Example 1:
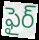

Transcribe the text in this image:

ఫైర్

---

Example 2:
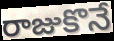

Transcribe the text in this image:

రాజుకొనే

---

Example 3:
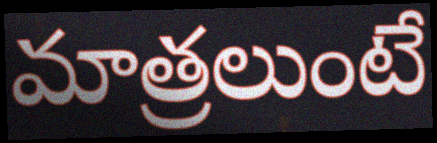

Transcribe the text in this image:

మాత్రలుంటే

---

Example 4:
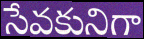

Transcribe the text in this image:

సేవకునిగా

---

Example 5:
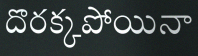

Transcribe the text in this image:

దొరక్కపోయినా